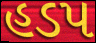
હડપ